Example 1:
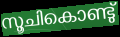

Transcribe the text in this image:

സൂചികൊണ്ടു്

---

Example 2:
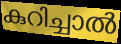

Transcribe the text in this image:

കുറിച്ചാൽ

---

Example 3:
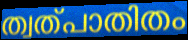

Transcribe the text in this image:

ത്വത്പാതിതം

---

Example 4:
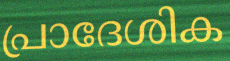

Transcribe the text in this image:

പ്രാദേശിക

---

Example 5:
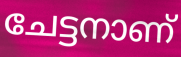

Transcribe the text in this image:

ചേട്ടനാണ്